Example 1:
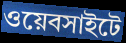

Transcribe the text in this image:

ওয়েবসাইটে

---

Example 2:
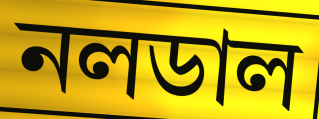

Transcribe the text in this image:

নলডাল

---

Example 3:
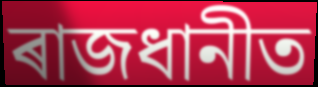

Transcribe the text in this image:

ৰাজধানীত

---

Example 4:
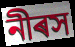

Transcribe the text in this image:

নীৰস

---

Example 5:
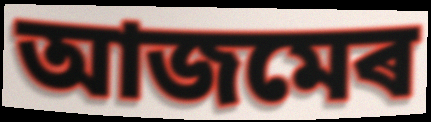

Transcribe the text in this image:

আজমেৰ